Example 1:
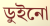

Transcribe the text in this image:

ডুইনো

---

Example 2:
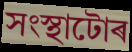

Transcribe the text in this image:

সংস্থাটোৰ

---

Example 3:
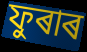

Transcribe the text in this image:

ফুৰাৰ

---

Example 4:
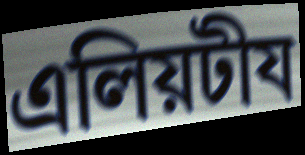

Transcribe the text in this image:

এলিয়টীয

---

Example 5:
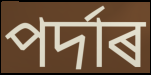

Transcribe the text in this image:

পৰ্দাৰ